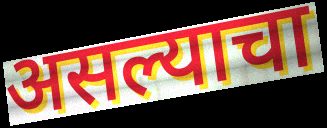
असल्याचा